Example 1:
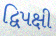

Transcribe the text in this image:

દ્વિપક્ષી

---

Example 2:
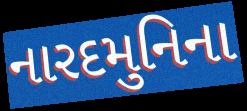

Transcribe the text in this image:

નારદમુનિના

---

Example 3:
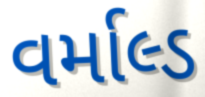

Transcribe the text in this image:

વર્માલ્ડ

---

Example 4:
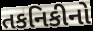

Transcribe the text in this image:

તકનિકીનો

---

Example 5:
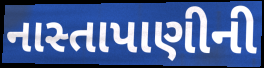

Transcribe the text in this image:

નાસ્તાપાણીની